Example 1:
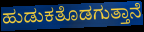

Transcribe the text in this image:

ಹುಡುಕತೊಡಗುತ್ತಾನೆ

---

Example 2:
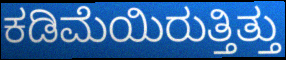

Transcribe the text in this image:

ಕಡಿಮೆಯಿರುತ್ತಿತ್ತು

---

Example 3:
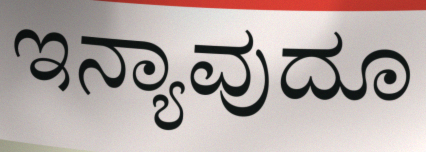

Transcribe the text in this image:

ಇನ್ಯಾವುದೂ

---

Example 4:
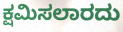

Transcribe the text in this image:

ಕ್ಷಮಿಸಲಾರದು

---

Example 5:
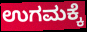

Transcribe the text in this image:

ಉಗಮಕ್ಕೆ